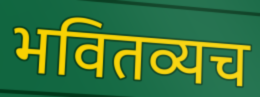
भवितव्यच